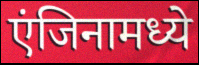
एंजिनामध्ये